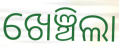
ଖେଞ୍ଚିଲା